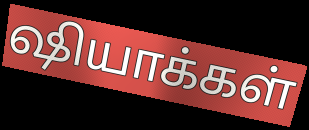
ஷியாக்கள்